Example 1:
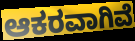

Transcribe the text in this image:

ಆಕರವಾಗಿವೆ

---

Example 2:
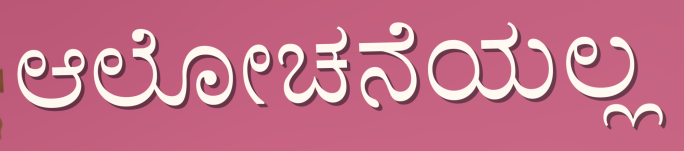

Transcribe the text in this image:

ಆಲೋಚನೆಯಲ್ಲ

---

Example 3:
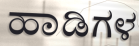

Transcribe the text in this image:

ಹಾಡಿಗಳ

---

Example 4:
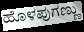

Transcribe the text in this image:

ಹೊಳಪುಗಣ್ಣು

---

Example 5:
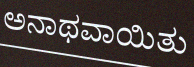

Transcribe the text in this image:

ಅನಾಥವಾಯಿತು